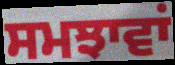
ਸਮਝਾਵਾਂ